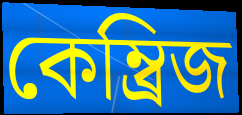
কেম্ব্ৰিজ